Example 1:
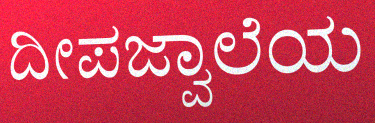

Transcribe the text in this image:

ದೀಪಜ್ವಾಲೆಯ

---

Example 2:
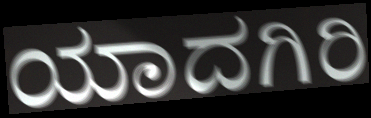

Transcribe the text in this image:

ಯಾದಗಿರಿ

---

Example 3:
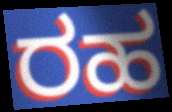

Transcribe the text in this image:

ರಹ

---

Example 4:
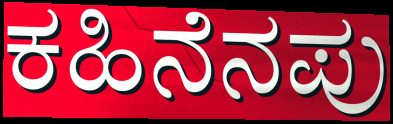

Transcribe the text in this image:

ಕಹಿನೆನಪು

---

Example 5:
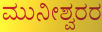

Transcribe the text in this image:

ಮುನೀಶ್ವರರ